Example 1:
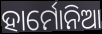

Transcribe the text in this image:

ହାର୍ମୋନିଆ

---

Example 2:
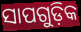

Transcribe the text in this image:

ସାପଗୁଡ଼ିକ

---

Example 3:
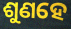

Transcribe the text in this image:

ଶୁଣହେ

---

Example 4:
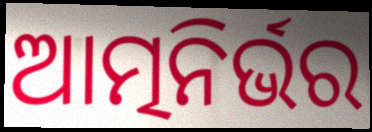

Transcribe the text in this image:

ଆତ୍ମନିର୍ଭର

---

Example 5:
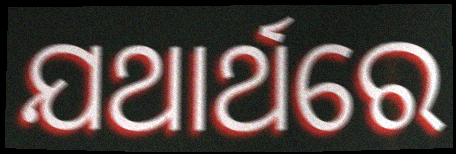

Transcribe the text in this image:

ଯଥାର୍ଥରେ